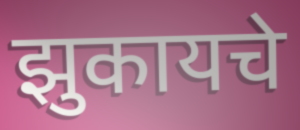
झुकायचे